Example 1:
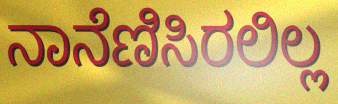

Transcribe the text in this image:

ನಾನೆಣಿಸಿರಲಿಲ್ಲ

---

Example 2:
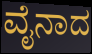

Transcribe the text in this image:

ವೈನಾದ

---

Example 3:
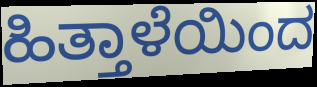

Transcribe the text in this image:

ಹಿತ್ತಾಳೆಯಿಂದ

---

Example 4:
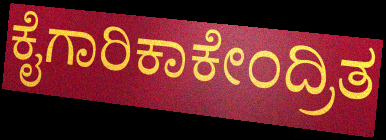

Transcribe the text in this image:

ಕೈಗಾರಿಕಾಕೇಂದ್ರಿತ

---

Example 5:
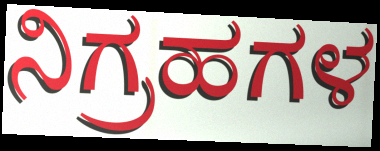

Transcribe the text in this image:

ನಿಗ್ರಹಗಳ